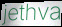
jethva